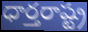
ధార్తరాష్ట్ర